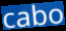
cabo